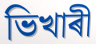
ভিখাৰী